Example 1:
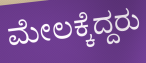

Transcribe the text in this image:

ಮೇಲಕ್ಕೆದ್ದರು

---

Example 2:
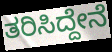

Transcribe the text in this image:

ತರಿಸಿದ್ದೇನೆ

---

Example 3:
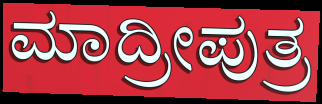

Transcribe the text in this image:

ಮಾದ್ರೀಪುತ್ರ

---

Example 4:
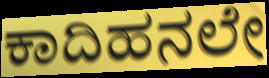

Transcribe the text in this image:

ಕಾದಿಹನಲೇ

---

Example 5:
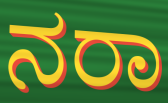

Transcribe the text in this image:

ನರಾ